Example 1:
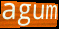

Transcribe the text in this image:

agum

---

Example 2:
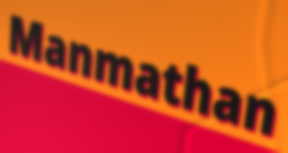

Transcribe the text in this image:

Manmathan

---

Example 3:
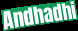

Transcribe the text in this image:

Andhadhi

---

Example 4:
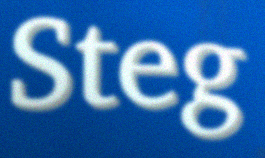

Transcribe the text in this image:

Steg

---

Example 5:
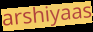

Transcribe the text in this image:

arshiyaas